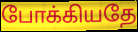
போக்கியதே